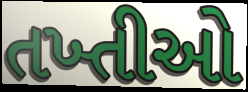
તખ્તીઓ